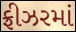
ફ્રીઝરમાં